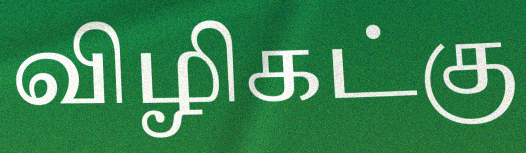
விழிகட்கு